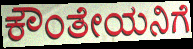
ಕೌಂತೇಯನಿಗೆ